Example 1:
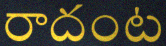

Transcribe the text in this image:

రాదంట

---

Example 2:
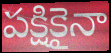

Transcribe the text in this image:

పక్షికైనా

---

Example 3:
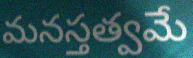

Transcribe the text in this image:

మనస్తత్వమే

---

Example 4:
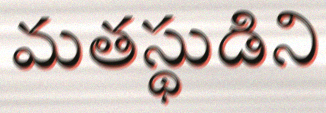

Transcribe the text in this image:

మతస్థుడిని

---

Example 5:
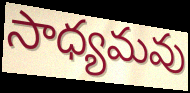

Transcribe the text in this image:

సాధ్యమవు